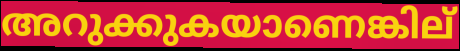
അറുക്കുകയാണെങ്കില്